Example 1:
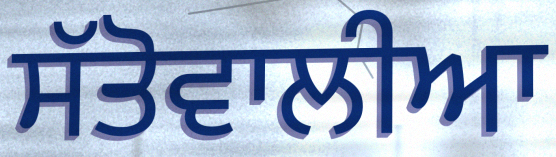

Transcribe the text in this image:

ਸੱਤੋਵਾਲੀਆ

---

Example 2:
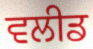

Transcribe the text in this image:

ਵਲੀਡ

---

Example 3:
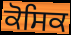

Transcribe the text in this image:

ਕੋਸਿਕ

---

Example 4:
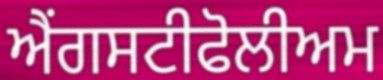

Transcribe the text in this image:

ਐਂਗਸਟੀਫੋਲੀਅਮ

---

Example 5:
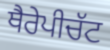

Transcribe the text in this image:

ਥੈਰੇਪੀਚੱਟ